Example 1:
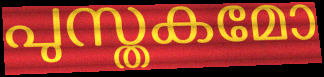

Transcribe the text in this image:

പുസ്തകമോ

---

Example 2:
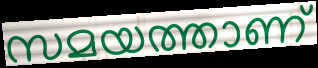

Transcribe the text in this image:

സമയത്താണ്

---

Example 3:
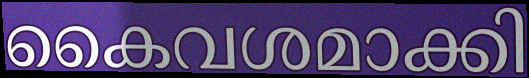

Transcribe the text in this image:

കൈവശമാക്കി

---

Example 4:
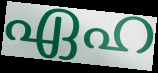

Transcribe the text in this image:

ഏഹ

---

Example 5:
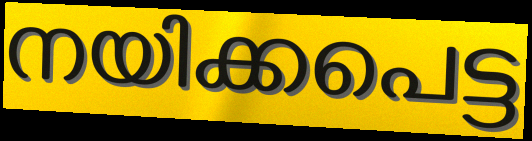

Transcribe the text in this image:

നയിക്കപെട്ട